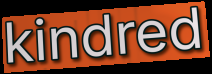
kindred